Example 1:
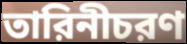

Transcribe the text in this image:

তারিনীচরণ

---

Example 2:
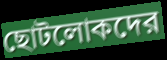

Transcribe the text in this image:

ছোটলোকদের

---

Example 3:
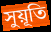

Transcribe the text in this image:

সুয়ূতি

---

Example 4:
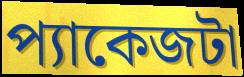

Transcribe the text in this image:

প্যাকেজটা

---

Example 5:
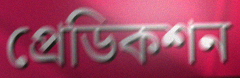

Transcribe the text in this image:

প্রেডিকশন